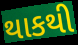
થાકથી